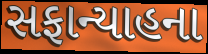
સફાન્યાહના